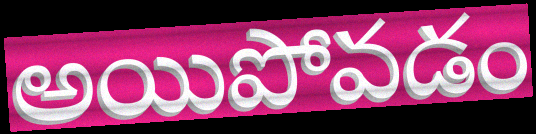
అయిపోవడం